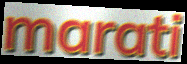
marati